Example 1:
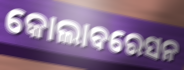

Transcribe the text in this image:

କୋଲାବରେସନ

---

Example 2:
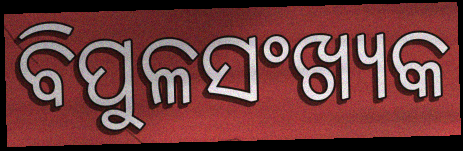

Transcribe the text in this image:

ବିପୁଳସଂଖ୍ୟକ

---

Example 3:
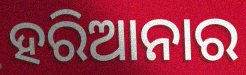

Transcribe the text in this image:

ହରିଆନାର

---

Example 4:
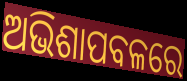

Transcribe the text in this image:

ଅଭିଶାପବଳରେ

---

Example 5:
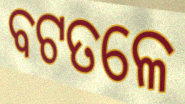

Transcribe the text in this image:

ବଟତଳେ